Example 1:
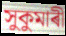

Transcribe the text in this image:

সুকুমাৰী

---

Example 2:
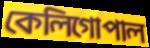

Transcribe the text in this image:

কেলিগোপাল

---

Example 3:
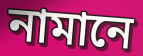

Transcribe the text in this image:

নামানে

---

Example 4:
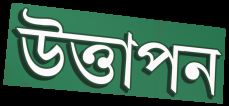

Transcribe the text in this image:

উত্তাপন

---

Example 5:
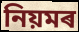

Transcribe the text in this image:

নিয়মৰ